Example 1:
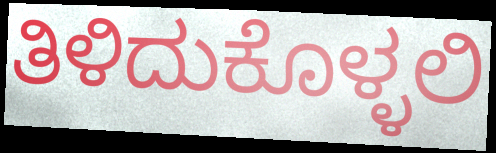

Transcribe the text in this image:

ತಿಳಿದುಕೊಳ್ಳಲಿ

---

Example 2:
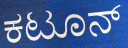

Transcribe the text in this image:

ಕಟೂನ್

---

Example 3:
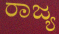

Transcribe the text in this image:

ರಾಜ್ಯ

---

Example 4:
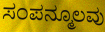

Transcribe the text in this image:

ಸಂಪನ್ಮೂಲವು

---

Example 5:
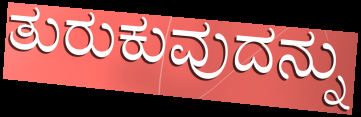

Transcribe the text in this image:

ತುರುಕುವುದನ್ನು